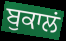
ਬੁਕਾਲਂ